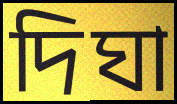
দিঘা